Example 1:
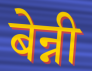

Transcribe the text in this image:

बेन्नी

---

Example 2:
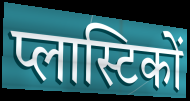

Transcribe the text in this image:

प्लास्टिकों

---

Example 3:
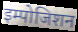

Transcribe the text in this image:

इम्पोजिशन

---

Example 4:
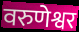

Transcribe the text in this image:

वरुणेश्वर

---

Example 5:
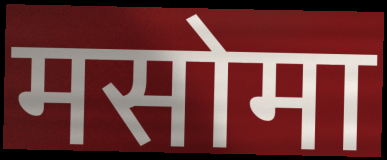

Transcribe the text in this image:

मसोमा